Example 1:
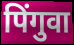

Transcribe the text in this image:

पिंगुवा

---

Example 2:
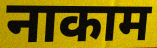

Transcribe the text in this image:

नाकाम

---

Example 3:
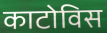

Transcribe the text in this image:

काटोविस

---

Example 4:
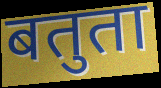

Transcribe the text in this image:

बतुता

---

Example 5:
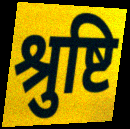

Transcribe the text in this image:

श्रुष्टि